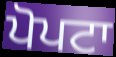
ਪੋਪਟਾ